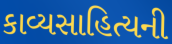
કાવ્યસાહિત્યની